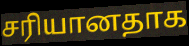
சரியானதாக